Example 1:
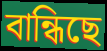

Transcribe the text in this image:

বান্ধিছে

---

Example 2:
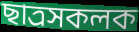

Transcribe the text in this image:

ছাত্ৰসকলক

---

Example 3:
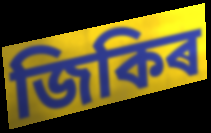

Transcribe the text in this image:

জিকিৰ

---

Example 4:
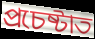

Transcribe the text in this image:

প্ৰচেষ্টাত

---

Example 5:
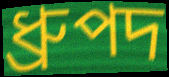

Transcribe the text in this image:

ধ্ৰুপদ